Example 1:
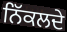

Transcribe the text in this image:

ਨਿੱਕਲਦੇ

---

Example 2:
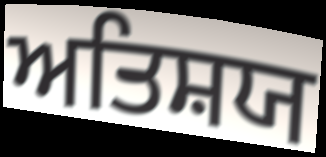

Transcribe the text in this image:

ਅਤਿਸ਼ਯ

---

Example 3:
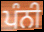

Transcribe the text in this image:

ਪੰਨੀ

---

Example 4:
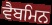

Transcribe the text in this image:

ਵੈਬਮਿਨ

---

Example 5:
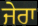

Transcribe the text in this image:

ਜੇਰਾ